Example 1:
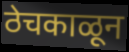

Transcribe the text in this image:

ठेचकाळून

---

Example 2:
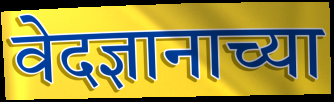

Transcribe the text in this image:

वेदज्ञानाच्या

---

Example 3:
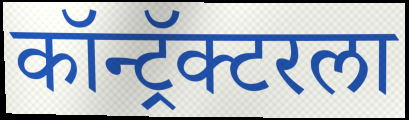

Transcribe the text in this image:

कॉन्ट्रॅक्टरला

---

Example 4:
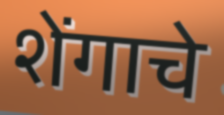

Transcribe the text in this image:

शेंगाचे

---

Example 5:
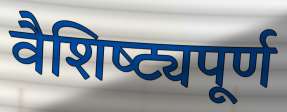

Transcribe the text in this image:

वैशिष्‍ट्यपूर्ण